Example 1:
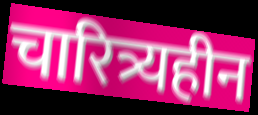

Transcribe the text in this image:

चारित्र्यहीन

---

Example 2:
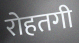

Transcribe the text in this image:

रोहतगी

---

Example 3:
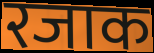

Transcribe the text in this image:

रजाक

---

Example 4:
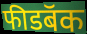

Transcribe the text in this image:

फीडबॅक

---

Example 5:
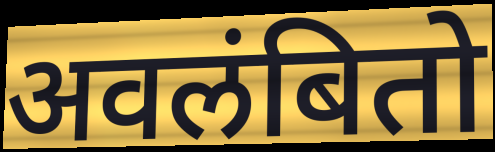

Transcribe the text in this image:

अवलंबितो